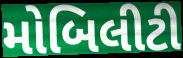
મોબિલીટી